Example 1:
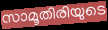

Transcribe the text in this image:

സാമൂതിരിയുടെ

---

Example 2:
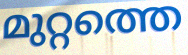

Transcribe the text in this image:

മുറ്റത്തെ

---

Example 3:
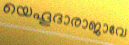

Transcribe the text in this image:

യെഹൂദാരാജാവേ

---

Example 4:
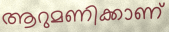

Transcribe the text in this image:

ആറുമണിക്കാണ്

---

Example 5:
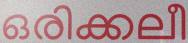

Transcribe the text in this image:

ഒരിക്കലീ